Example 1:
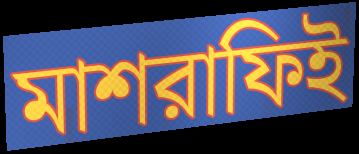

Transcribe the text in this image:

মাশরাফিই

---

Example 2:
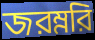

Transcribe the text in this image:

জরম্নরি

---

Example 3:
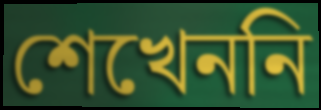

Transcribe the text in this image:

শেখেননি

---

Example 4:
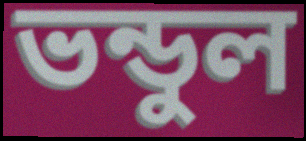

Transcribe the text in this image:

ভন্ডুল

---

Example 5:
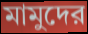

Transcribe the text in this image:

মামুদের